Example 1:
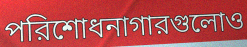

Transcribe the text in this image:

পরিশোধনাগারগুলোও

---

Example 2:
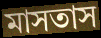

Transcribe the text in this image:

মাসতাস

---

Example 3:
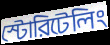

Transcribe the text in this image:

স্টোরিটেলিং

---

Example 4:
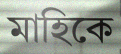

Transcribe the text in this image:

মাহিকে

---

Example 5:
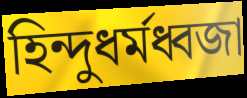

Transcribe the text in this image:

হিন্দুধর্মধ্বজা